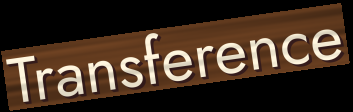
Transference